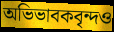
অভিভাবকবৃন্দও